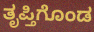
ತೃಪ್ತಿಗೊಂಡ